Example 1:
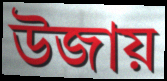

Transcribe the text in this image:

উজায়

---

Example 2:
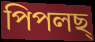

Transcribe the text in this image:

পিপলছ্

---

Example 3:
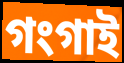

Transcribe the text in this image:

গংগাই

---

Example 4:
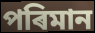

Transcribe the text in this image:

পৰিমান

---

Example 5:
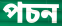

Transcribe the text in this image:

পচন